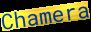
Chamera